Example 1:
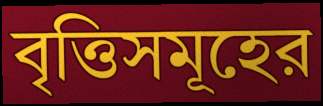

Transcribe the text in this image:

বৃত্তিসমূহের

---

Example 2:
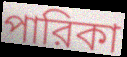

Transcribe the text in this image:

পারিকা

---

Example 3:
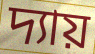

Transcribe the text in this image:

দ্যায়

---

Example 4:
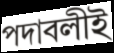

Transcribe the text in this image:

পদাবলীই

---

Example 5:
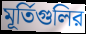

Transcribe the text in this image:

মূর্তিগুলির